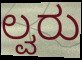
ಲ್ವರು